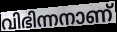
വിഭിന്നനാണ്